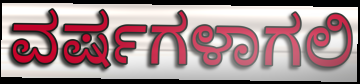
ವರ್ಷಗಳಾಗಲಿ